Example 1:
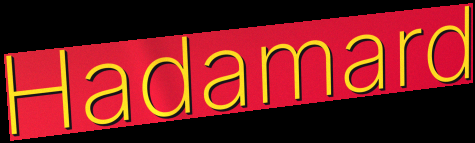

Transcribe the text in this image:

Hadamard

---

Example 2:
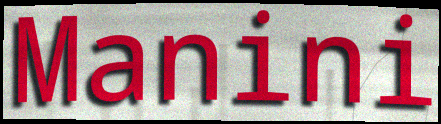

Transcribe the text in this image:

Manini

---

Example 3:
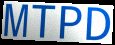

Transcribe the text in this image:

MTPD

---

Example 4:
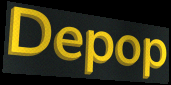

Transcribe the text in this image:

Depop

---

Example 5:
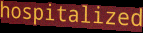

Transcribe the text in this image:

hospitalized